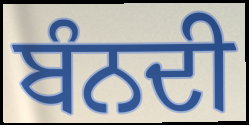
ਬੰਨਦੀ